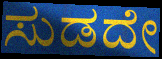
ಸುಡದೇ